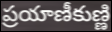
ప్రయాణీకుణ్ణి